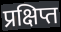
प्रक्षिप्त